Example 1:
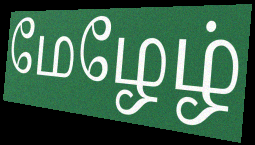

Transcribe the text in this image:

மேழேழ்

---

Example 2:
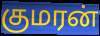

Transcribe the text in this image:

குமரன்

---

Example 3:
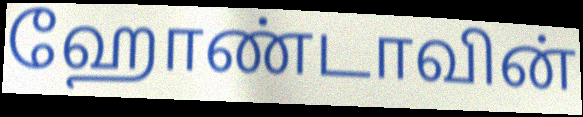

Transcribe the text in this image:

ஹோண்டாவின்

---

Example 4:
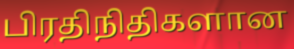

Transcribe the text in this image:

பிரதிநிதிகளான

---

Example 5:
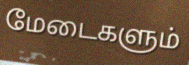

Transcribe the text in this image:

மேடைகளும்